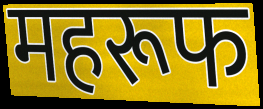
महरूफ